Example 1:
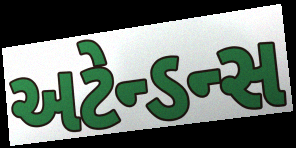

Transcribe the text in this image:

અટેન્ડન્સ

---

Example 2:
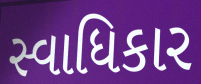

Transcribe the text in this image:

સ્વાધિકાર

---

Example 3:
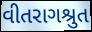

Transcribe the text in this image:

વીતરાગશ્રુત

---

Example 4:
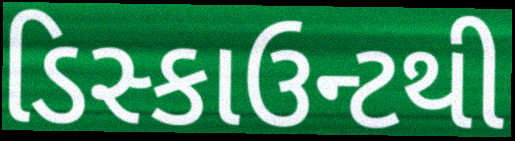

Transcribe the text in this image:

ડિસ્કાઉન્ટથી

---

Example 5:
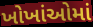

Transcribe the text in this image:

ખોખાંઓમાં